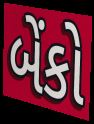
બેંકો